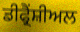
ਡੀਫ੍ਰੈਂਸ਼ੀਅਲ